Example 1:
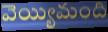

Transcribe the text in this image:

వెయ్యిమంది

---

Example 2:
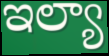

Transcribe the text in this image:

ఇల్యా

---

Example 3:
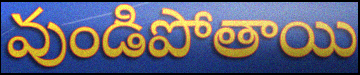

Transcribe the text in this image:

వుండిపోతాయి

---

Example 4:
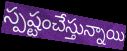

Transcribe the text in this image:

స్పష్టంచేస్తున్నాయి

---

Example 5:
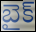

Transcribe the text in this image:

బైక్